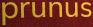
prunus